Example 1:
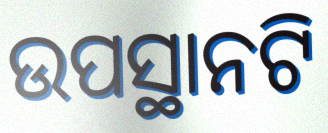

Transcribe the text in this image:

ଉପସ୍ଥାନଟି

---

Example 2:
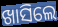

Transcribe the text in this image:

ଖାସିଲେ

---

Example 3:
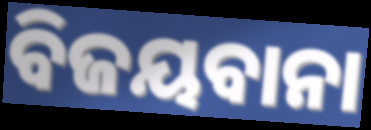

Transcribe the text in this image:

ବିଜୟବାନା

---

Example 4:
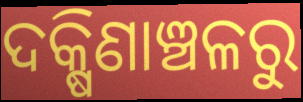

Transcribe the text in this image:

ଦକ୍ଷିଣାଞ୍ଚଳରୁ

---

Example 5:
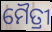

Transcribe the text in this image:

ମୈତ୍ରୀ